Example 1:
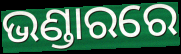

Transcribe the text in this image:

ଭଣ୍ଡାରରେ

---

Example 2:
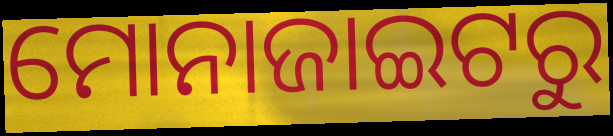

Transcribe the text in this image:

ମୋନାଜାଇଟରୁ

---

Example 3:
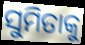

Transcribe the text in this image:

ସୁମିତାକୁ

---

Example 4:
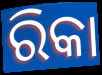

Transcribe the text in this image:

ରିକା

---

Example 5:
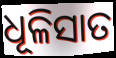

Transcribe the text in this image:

ଧୂଳିସାତ